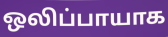
ஒலிப்பாயாக